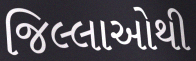
જિલ્લાઓથી